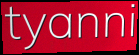
tyanni